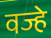
वज्हे